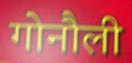
गोनौली